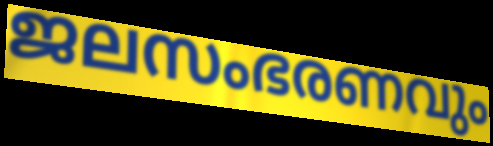
ജലസംഭരണവും